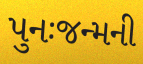
પુનઃજન્મની